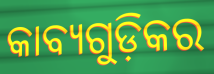
କାବ୍ୟଗୁଡ଼ିକର